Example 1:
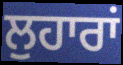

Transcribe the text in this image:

ਲੁਹਾਰਾਂ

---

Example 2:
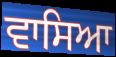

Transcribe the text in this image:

ਵਾਸਿਆ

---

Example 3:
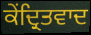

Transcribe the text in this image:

ਕੇਂਦ੍ਰਿਤਵਾਦ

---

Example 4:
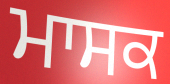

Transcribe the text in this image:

ਮਾਸਕ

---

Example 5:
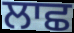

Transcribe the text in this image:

ਲਾਛ